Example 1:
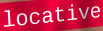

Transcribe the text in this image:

locative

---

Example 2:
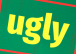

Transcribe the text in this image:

ugly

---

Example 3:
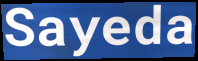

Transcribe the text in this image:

Sayeda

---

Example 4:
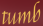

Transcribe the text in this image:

tumb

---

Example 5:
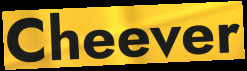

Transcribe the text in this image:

Cheever